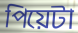
পিয়েটা